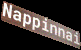
Nappinnai